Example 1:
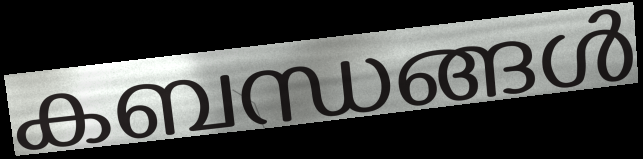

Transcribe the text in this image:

കബന്ധങ്ങൾ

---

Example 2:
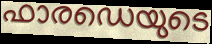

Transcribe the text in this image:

ഫാരഡെയുടെ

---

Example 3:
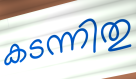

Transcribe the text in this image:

കടന്നിതു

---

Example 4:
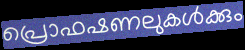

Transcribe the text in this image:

പ്രൊഫഷണലുകൾക്കും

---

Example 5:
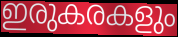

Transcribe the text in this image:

ഇരുകരകളും